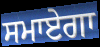
ਸਮਾਏਗਾ